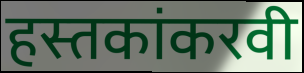
हस्तकांकरवी